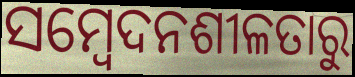
ସମ୍ବେଦନଶୀଳତାରୁ